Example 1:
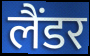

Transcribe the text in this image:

लैंडर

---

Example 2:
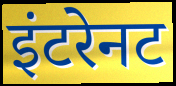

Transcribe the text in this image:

इंटरेनट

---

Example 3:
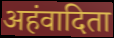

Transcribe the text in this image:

अहंवादिता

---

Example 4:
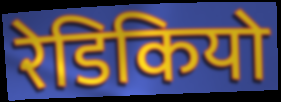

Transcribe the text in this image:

रेडिकियो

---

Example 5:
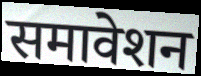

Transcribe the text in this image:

समावेशन